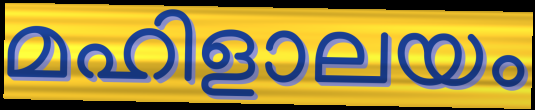
മഹിളാലയം